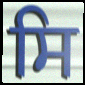
ਸਿ